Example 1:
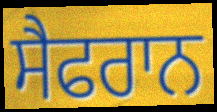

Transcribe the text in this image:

ਸੈਫਰਾਨ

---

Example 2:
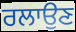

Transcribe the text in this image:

ਰਲਾਉਣ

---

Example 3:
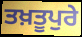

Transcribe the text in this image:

ਤਖ਼ਤੂਪੁਰੇ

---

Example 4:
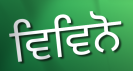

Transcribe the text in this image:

ਵਿਵਿਨੋ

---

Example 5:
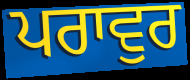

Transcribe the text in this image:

ਪਰਾਵੁਰ